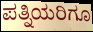
ಪತ್ನಿಯರಿಗೂ